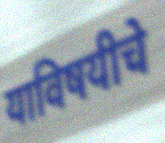
याविषयीचे